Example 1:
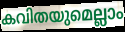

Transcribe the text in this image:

കവിതയുമെല്ലാം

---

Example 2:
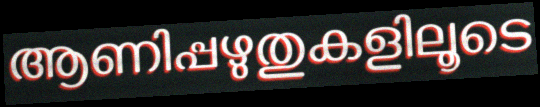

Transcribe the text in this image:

ആണിപ്പഴുതുകളിലൂടെ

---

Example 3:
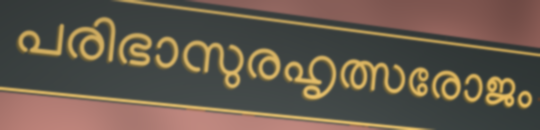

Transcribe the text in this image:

പരിഭാസുരഹൃത്സരോജം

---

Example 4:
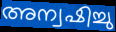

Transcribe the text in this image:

അന്വഷിച്ചു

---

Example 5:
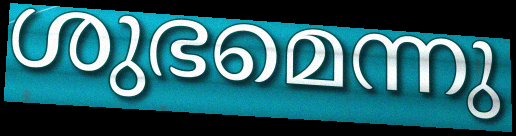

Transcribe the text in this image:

ശുഭമെന്നു